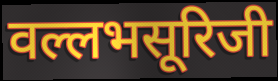
वल्लभसूरिजी